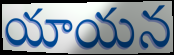
యాయన